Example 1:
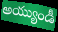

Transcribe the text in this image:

అయ్యుండీ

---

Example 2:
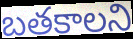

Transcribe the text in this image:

బతకాలని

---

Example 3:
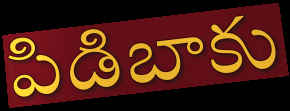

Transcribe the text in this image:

పిడిబాకు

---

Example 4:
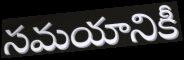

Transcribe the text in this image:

సమయానికీ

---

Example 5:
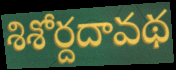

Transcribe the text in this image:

శిశోర్దదావథ